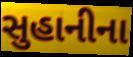
સુહાનીના